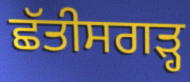
ਛੱਤੀਸਗੜ੍ਹ